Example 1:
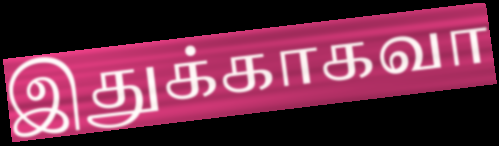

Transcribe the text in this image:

இதுக்காகவா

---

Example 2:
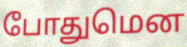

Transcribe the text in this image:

போதுமென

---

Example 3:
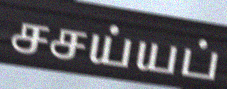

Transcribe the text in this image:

சசய்யப்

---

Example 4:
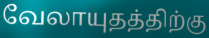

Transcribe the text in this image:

வேலாயுதத்திற்கு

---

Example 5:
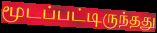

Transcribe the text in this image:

மூடப்பட்டிருந்தது